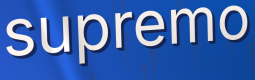
supremo